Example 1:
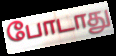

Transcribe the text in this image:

போடாது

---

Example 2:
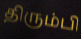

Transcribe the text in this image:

திரும்பி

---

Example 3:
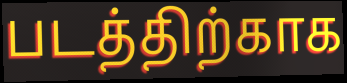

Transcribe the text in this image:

படத்திற்காக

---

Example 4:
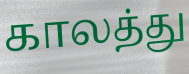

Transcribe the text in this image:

காலத்து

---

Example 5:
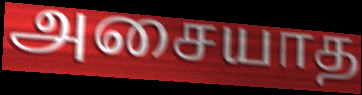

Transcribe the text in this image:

அசையாத